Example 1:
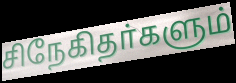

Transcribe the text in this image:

சிநேகிதர்களும்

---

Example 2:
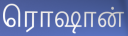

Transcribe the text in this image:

ரொஷான்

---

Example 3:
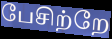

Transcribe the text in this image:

பேசிற்றே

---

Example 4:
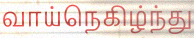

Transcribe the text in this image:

வாய்நெகிழ்ந்து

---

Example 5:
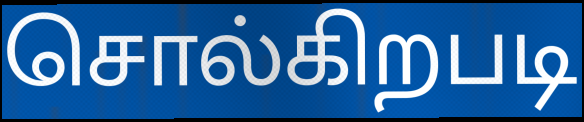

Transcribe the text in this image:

சொல்கிறபடி